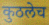
कुठलेच